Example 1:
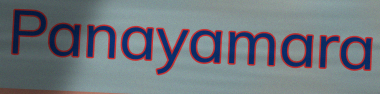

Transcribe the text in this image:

Panayamara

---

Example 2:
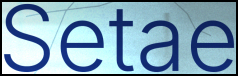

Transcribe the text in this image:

Setae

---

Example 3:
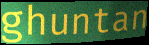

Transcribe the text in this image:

ghuntan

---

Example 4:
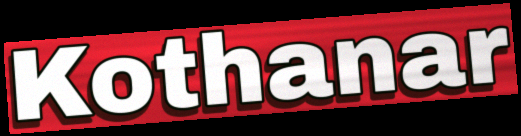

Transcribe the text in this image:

Kothanar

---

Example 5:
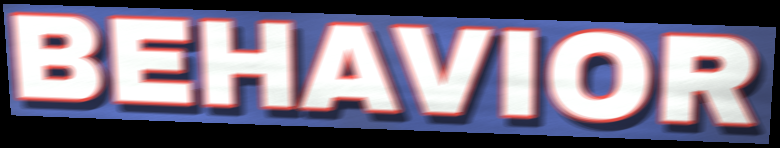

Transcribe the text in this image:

BEHAVIOR